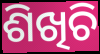
ଶିଖିଚି